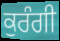
ਕੁਰੰਗੀ